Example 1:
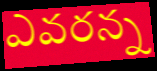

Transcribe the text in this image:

ఎవరన్న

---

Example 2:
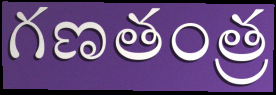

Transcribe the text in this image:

గణతంత్ర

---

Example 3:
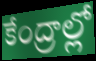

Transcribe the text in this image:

కేంద్రాల్లో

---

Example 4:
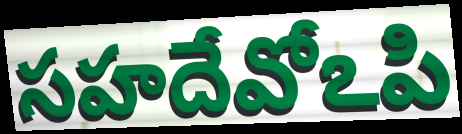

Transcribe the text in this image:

సహదేవోఽపి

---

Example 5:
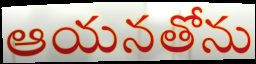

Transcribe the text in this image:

ఆయనతోను